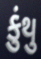
કુંથુ